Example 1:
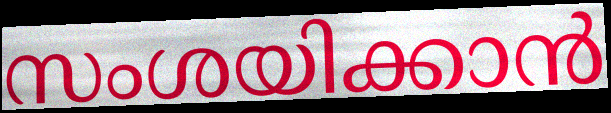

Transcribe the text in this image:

സംശയിക്കാൻ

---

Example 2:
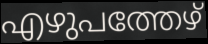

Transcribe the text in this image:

എഴുപത്തേഴ്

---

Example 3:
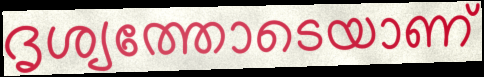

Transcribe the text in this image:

ദൃശ്യത്തോടെയാണ്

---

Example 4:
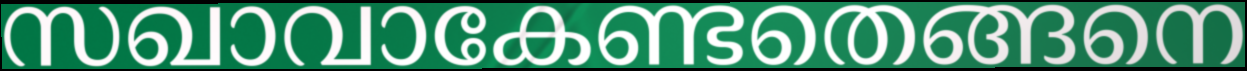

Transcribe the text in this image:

സഖാവാകേണ്ടതെങ്ങനെ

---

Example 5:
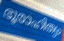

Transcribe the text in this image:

ഭൂരാഹിത്യം